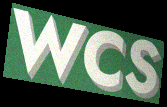
WCS